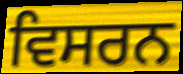
ਵਿਸਰਨ